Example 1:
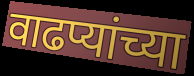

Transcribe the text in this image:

वाढप्यांच्या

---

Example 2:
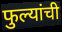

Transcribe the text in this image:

फुल्यांची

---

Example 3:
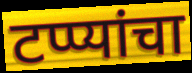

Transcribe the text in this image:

टप्प्यांचा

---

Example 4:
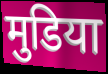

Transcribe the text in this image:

मुडिया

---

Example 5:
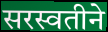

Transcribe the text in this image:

सरस्वतीने